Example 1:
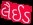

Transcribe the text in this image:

લૈઈડ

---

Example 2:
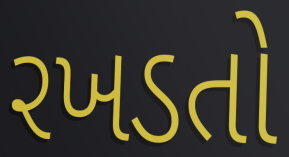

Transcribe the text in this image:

રખડતો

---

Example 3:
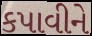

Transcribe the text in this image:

કપાવીને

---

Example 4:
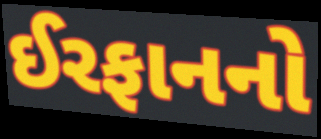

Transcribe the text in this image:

ઈરફાનનો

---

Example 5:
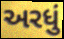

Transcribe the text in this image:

અરધું